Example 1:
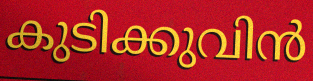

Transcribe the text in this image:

കുടിക്കുവിൻ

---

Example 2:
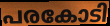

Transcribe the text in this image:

പരകോടി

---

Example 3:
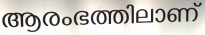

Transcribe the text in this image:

ആരംഭത്തിലാണ്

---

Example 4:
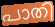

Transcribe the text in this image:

പാതി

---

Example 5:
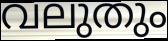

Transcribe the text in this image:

വലുതും